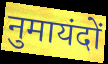
नुमायंदों